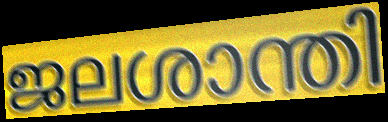
ജലശാന്തി